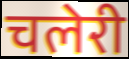
चलेरी